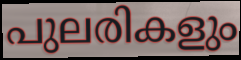
പുലരികളും